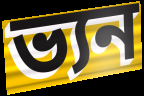
ভ্যন